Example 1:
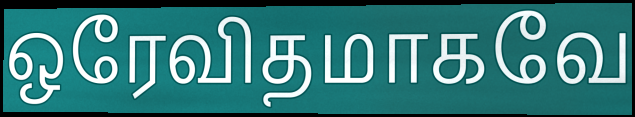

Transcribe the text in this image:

ஒரேவிதமாகவே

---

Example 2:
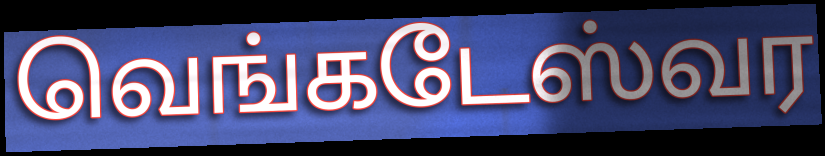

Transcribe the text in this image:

வெங்கடேஸ்வர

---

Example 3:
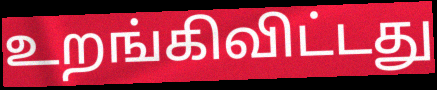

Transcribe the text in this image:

உறங்கிவிட்டது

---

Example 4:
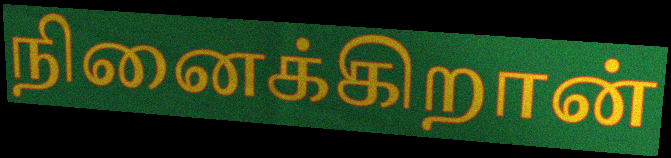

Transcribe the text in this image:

நினைக்கிறான்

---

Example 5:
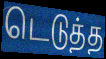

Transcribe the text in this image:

டெடுத்த